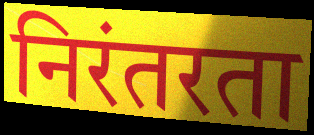
निरंतरता